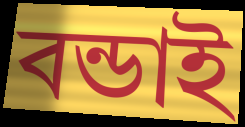
বন্ডাই